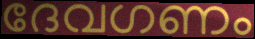
ദേവഗണം